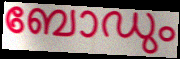
ബോഡും